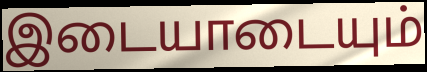
இடையாடையும்